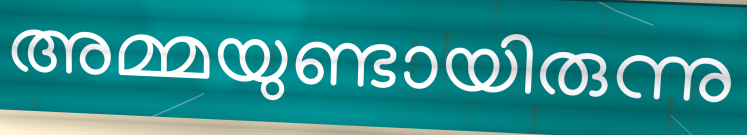
അമ്മയുണ്ടായിരുന്നു